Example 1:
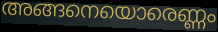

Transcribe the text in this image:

അങ്ങനെയൊരെണ്ണം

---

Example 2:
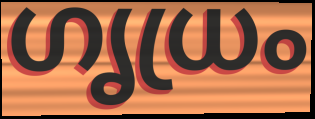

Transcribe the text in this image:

ഗൃധ്രം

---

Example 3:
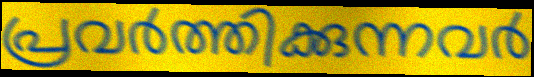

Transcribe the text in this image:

പ്രവർത്തിക്കുന്നവർ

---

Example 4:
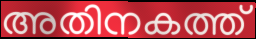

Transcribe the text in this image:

അതിനകത്ത്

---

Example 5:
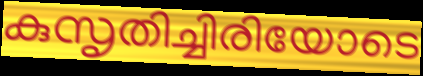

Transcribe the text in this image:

കുസൃതിച്ചിരിയോടെ